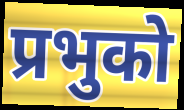
प्रभुको